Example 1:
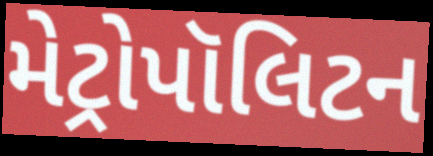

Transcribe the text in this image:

મેટ્રોપૉલિટન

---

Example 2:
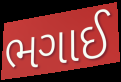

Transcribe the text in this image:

ભગાઈ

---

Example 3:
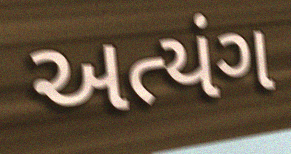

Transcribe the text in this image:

અત્યંગ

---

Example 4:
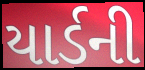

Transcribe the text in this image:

યાર્ડની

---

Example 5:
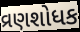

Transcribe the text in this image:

વ્રણશોધક